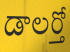
డాలర్తో